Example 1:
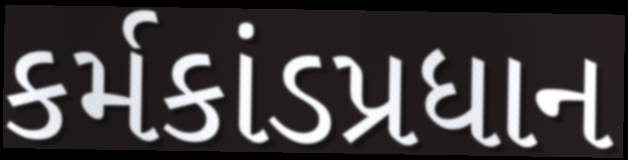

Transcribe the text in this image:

કર્મકાંડપ્રધાન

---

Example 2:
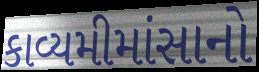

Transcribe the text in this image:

કાવ્યમીમાંસાનો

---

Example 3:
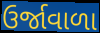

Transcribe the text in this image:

ઉર્જાવાળા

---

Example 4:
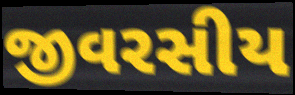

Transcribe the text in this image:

જીવરસીય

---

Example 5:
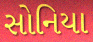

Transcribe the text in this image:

સોનિયા